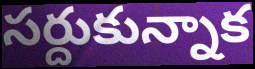
సర్దుకున్నాక